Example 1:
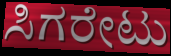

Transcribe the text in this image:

ಸಿಗರೇಟು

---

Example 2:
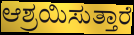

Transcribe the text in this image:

ಆಶ್ರಯಿಸುತ್ತಾರೆ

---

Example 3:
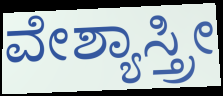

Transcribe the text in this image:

ವೇಶ್ಯಾಸ್ತ್ರೀ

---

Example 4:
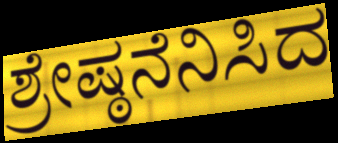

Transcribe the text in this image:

ಶ್ರೇಷ್ಠನೆನಿಸಿದ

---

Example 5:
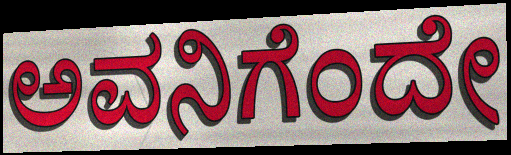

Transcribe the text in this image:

ಅವನಿಗೆಂದೇ